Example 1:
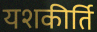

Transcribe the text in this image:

यशकीर्ति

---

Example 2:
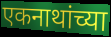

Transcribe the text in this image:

एकनाथांच्या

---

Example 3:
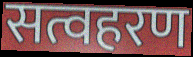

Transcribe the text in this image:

सत्वहरण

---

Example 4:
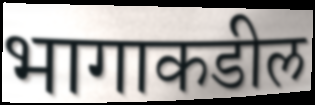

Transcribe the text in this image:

भागाकडील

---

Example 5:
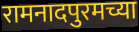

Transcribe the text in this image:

रामनादपुरमच्या